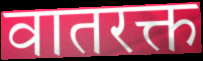
वातरक्त